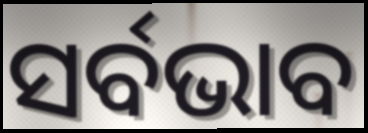
ସର୍ବଭାବ